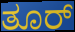
ತೂರ್